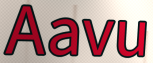
Aavu